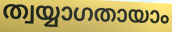
ത്വയ്യാഗതായാം